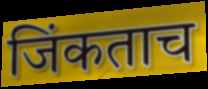
जिंकताच